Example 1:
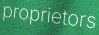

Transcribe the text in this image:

proprietors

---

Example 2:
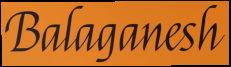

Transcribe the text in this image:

Balaganesh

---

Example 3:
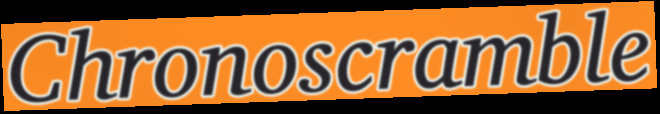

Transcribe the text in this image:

Chronoscramble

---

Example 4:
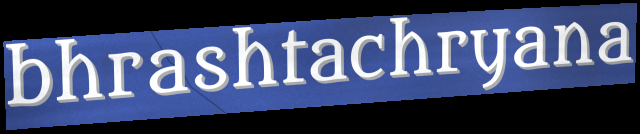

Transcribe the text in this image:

bhrashtachryana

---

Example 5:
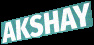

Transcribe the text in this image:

AKSHAY